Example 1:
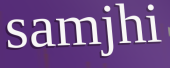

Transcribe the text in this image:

samjhi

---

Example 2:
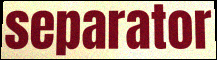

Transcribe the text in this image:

separator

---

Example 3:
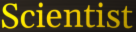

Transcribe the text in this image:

Scientist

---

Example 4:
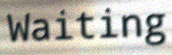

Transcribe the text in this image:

Waiting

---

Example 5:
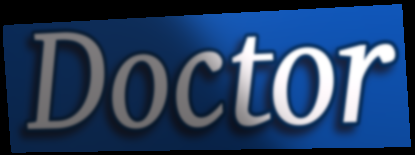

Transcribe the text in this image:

Doctor